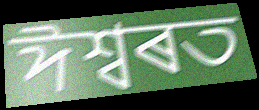
ঈশ্বৰত